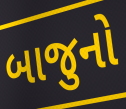
બાજુનો